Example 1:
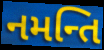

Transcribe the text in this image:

નમન્તિ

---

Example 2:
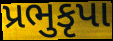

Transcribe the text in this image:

પ્રભુકૃપા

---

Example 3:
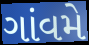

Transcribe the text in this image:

ગાંવમે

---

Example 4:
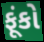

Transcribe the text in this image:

ફૂંકો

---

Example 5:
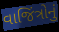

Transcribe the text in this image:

વાજિંત્રોનું